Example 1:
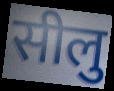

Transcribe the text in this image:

सीलु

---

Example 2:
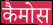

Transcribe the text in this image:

कैमोस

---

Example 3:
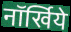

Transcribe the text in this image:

नॉर्खिये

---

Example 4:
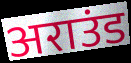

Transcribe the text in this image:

अराउंड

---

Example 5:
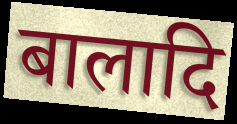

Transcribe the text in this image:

बालादि